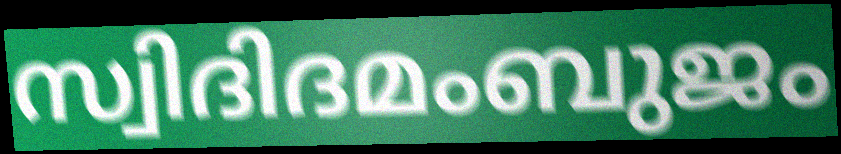
സ്വിദിദമംബുജം